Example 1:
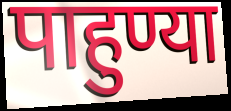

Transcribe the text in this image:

पाहुण्या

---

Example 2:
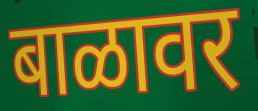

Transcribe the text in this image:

बाळावर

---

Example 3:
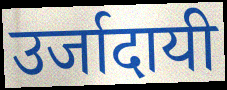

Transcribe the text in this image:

उर्जादायी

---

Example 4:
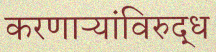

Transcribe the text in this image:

करणाऱ्यांविरुद्ध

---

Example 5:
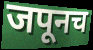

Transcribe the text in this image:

जपूनच